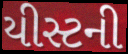
યીસ્ટની